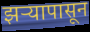
झऱ्यापासून